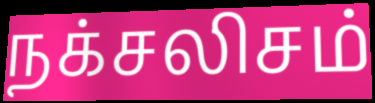
நக்சலிசம்